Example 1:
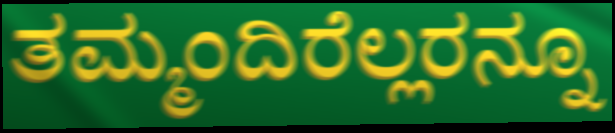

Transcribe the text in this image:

ತಮ್ಮಂದಿರೆಲ್ಲರನ್ನೂ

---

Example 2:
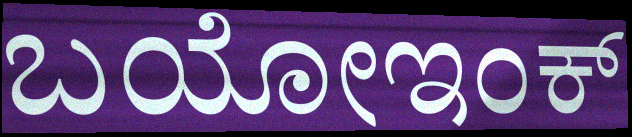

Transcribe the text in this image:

ಬಯೋಇಂಕ್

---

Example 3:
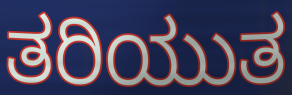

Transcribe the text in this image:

ತರಿಯುತ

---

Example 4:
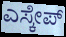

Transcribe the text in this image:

ಎಸ್ಕೇಪ್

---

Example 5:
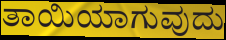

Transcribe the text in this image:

ತಾಯಿಯಾಗುವುದು